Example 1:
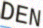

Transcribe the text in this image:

DEN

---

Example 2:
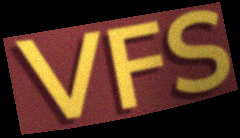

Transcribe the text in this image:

VFS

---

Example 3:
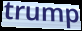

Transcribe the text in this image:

trump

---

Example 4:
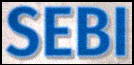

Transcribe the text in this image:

SEBI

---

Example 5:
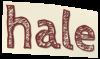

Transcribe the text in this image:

hale